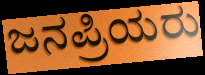
ಜನಪ್ರಿಯರು